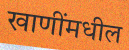
खाणींमधील